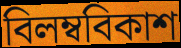
বিলম্ববিকাশ